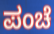
ಪಂಚೆ